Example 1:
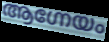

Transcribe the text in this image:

ആഗ്നേയം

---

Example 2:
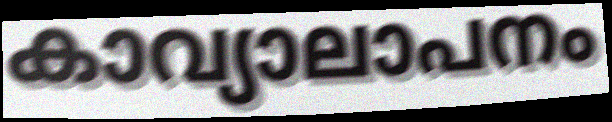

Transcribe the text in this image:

കാവ്യാലാപനം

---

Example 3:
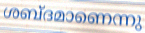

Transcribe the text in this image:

ശബ്ദമാണെന്നു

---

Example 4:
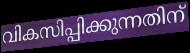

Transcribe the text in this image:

വികസിപ്പിക്കുന്നതിന്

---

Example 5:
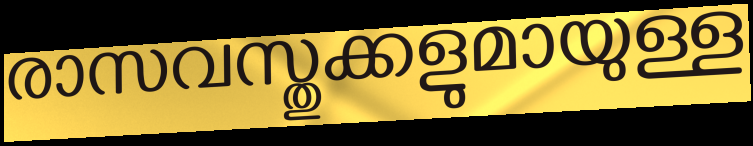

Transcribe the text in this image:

രാസവസ്തുക്കളുമായുള്ള